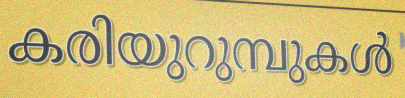
കരിയുറുമ്പുകൾ